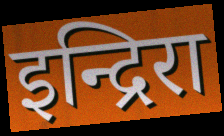
इन्द्रिरा